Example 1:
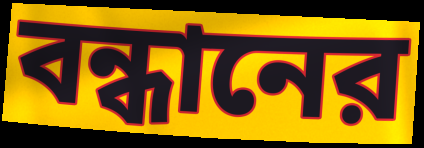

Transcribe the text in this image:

বন্ধানের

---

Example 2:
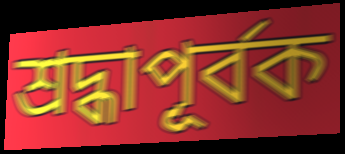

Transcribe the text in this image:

শ্রদ্ধাপূর্বক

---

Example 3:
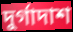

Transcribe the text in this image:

দুর্গাদাশ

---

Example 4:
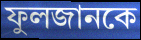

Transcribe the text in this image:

ফুলজানকে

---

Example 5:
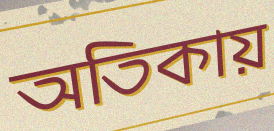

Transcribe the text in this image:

অতিকায়